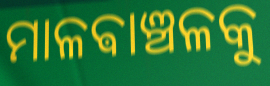
ମାଳଵାଞ୍ଚଳକୁ